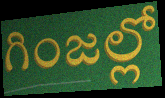
గింజల్లో